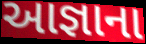
આજ્ઞાના